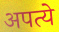
अपत्ये